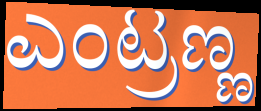
ಎಂಟ್ರಣ್ಣ